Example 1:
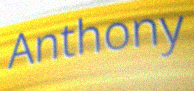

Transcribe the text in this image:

Anthony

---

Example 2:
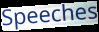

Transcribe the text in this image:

Speeches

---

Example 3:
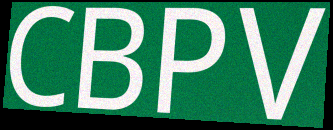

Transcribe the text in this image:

CBPV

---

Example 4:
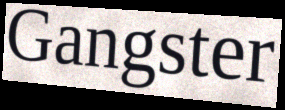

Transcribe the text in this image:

Gangster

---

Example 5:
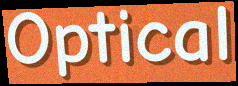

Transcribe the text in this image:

Optical